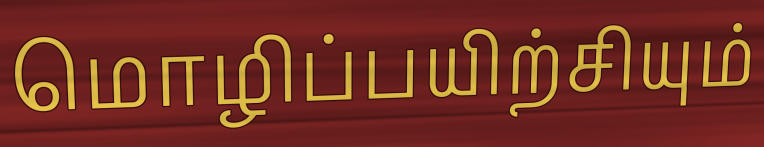
மொழிப்பயிற்சியும்